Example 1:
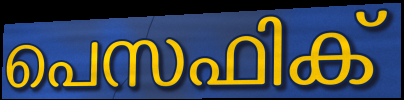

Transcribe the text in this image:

പെസഫിക്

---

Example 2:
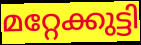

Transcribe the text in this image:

മറ്റേക്കുട്ടി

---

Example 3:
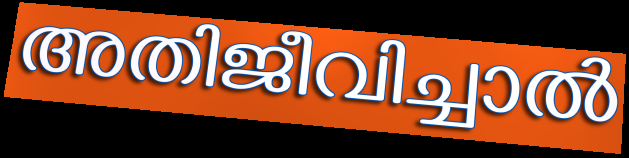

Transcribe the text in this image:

അതിജീവിച്ചാൽ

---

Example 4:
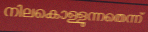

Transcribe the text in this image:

നിലകൊള്ളുന്നതെന്ന്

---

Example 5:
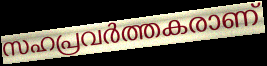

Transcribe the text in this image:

സഹപ്രവർത്തകരാണ്